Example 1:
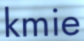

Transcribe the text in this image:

kmie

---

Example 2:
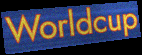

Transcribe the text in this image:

Worldcup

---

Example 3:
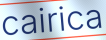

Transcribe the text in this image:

cairica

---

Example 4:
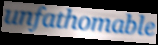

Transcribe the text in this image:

unfathomable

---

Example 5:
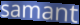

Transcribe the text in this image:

samant